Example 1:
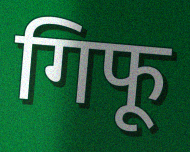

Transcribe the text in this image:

गिफू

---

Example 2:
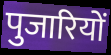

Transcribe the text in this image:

पुजारियों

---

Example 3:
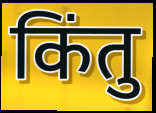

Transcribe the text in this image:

किंतु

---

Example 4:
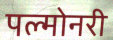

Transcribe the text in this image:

पल्मोनरी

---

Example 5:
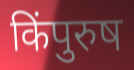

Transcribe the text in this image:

किंपुरुष